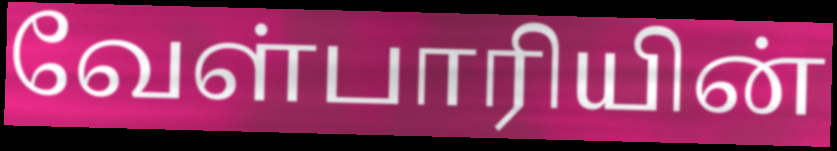
வேள்பாரியின்